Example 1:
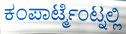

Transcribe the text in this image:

ಕಂಪಾರ್ಟ್ಮೆಂಟ್ನಲ್ಲಿ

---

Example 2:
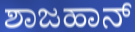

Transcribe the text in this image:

ಶಾಜಹಾನ್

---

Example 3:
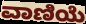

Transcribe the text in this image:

ವಾಣಿಯೆ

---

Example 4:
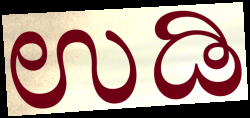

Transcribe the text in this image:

ಉಡಿ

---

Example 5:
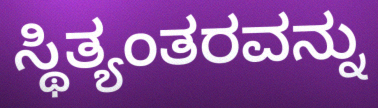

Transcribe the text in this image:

ಸ್ಥಿತ್ಯಂತರವನ್ನು